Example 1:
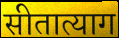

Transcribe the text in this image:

सीतात्याग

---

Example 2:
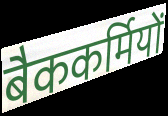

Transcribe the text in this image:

बैककर्मियों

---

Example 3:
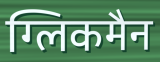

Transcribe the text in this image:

ग्लिकमैन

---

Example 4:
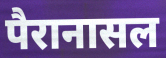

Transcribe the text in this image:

पैरानासल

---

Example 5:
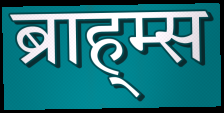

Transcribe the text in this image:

ब्राह्म्स